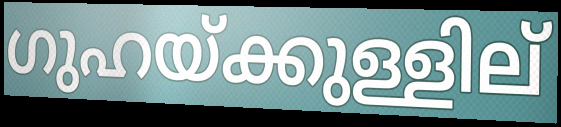
ഗുഹയ്ക്കുള്ളില്